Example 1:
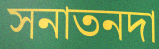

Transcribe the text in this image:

সনাতনদা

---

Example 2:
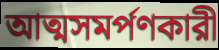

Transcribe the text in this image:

আত্মসমর্পণকারী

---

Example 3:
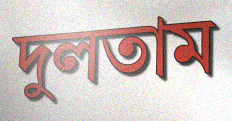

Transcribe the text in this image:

দুলতাম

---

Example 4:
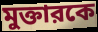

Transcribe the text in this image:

মুক্তারকে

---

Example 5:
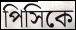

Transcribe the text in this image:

পিসিকে